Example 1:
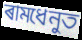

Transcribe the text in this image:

ৰামধেনুত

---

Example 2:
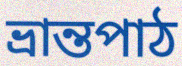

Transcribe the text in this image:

ভ্ৰান্তপাঠ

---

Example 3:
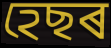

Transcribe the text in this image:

হেছৰ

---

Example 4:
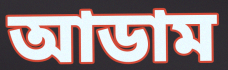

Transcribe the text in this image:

আডাম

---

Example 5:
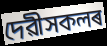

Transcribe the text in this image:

দেৱীসকলৰ